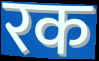
रक